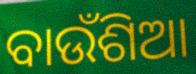
ବାଉଁଶିଆ